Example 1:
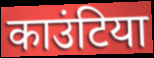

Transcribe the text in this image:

काउंटिया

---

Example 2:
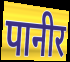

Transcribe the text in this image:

पानीर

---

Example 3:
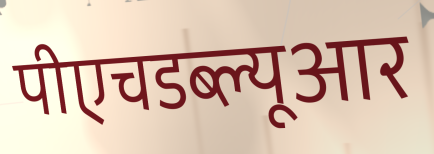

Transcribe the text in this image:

पीएचडब्ल्यूआर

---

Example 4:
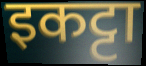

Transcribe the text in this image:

इकट्टा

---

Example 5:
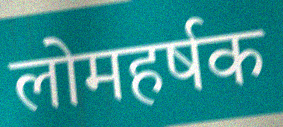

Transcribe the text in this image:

लोमहर्षक